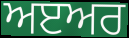
ਅੲਅਰ